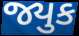
જ્યુક